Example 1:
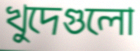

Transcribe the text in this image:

খুদেগুলো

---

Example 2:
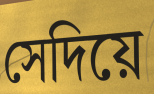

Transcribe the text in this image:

সেদিয়ে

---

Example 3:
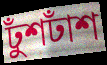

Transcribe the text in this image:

ঢুঁশঢাঁশ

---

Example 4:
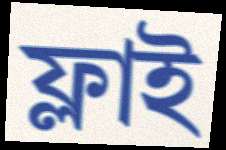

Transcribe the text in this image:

ফ্লাই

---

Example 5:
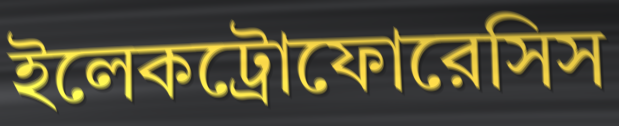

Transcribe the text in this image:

ইলেকট্রোফোরেসিস